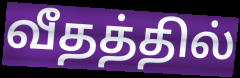
வீதத்தில்